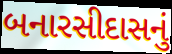
બનારસીદાસનું